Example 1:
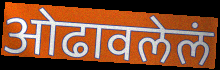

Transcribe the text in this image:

ओढावलेलं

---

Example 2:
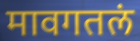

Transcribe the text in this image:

मावगतलं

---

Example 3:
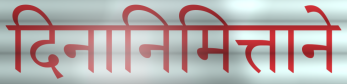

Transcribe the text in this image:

दिनानिमित्ताने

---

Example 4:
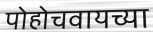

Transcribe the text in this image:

पोहोचवायच्या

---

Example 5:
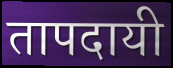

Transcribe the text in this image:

तापदायी